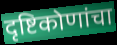
दृष्टिकोणांचा